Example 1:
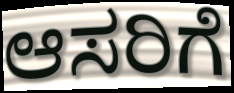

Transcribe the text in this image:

ಆಸರಿಗೆ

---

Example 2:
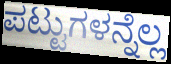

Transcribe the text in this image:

ಪಟ್ಟುಗಳನ್ನೆಲ್ಲ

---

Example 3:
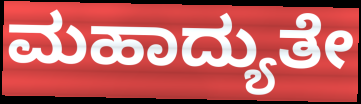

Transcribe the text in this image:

ಮಹಾದ್ಯುತೇ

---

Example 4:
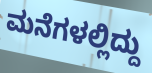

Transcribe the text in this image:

ಮನೆಗಳಲ್ಲಿದ್ದು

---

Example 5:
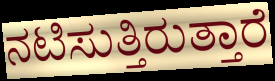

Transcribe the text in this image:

ನಟಿಸುತ್ತಿರುತ್ತಾರೆ